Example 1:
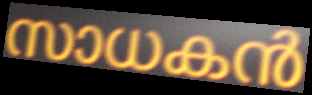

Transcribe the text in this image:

സാധകൻ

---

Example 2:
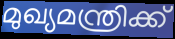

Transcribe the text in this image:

മുഖ്യമന്ത്രിക്ക്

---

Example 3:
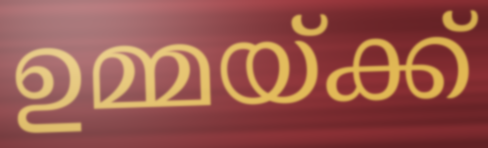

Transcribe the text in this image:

ഉമ്മയ്ക്ക്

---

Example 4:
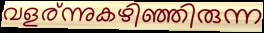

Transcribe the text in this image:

വളര്ന്നുകഴിഞ്ഞിരുന്ന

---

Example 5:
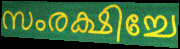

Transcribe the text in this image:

സംരക്ഷിച്ചേ